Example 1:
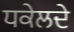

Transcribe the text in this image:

ਧਕੇਲਦੇ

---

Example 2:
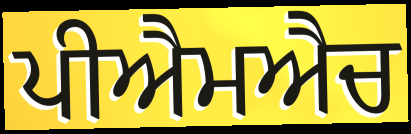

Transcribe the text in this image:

ਪੀਐਮਐਚ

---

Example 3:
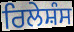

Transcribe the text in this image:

ਰਿਲੇਸ਼ੰਸ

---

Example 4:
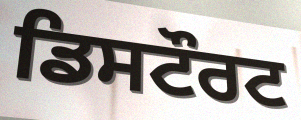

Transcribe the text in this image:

ਡਿਸਟੌਰਟ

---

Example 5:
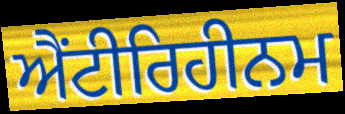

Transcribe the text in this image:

ਐਂਟੀਰਿਹੀਨਮ